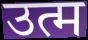
उत्म